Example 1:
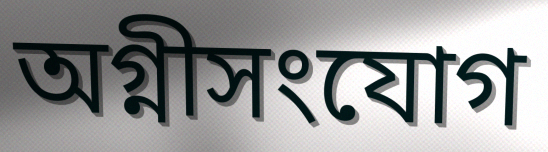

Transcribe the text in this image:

অগ্নীসংযোগ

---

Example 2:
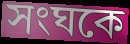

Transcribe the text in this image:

সংঘকে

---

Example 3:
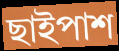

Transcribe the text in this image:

ছাইপাশ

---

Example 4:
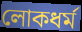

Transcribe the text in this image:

লোকধর্ম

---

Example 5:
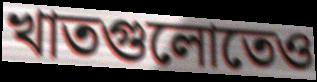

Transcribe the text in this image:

খাতগুলোতেও